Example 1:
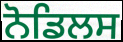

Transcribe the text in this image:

ਨੋਡਿਲਸ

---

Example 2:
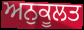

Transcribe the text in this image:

ਅਨੁਕੂਲਤ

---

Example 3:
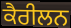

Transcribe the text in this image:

ਕੈਰੀਲਨ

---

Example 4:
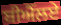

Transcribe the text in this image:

ਬੀਐੱਲਏ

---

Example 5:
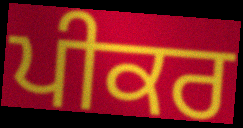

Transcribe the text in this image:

ਪੀਕਰ